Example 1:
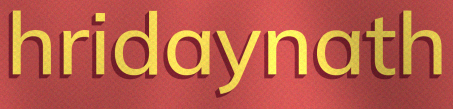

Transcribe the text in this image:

hridaynath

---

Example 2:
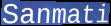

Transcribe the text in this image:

Sanmati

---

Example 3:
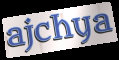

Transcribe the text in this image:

ajchya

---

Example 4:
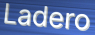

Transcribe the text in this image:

Ladero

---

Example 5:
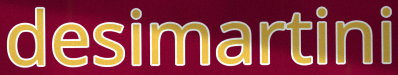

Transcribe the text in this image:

desimartini